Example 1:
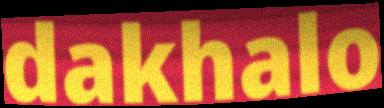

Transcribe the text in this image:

dakhalo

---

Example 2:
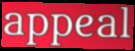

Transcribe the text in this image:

appeal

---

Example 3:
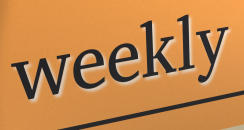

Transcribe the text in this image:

weekly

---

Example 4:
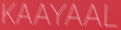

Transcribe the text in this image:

KAAYAAL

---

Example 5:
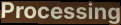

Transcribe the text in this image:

Processing